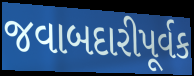
જવાબદારીપૂર્વક